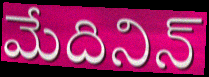
మేదినిన్